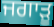
ਜਗਾੜੂ